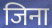
जिना